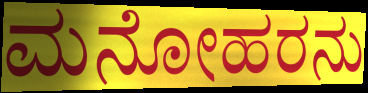
ಮನೋಹರನು